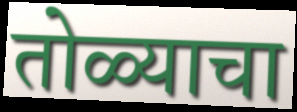
तोळ्याचा